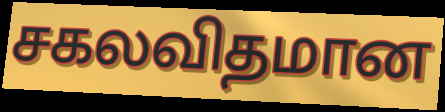
சகலவிதமான